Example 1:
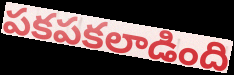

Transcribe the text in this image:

పకపకలాడింది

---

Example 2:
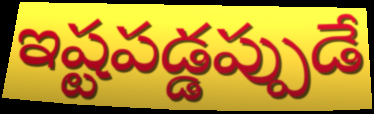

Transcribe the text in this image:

ఇష్టపడ్డప్పుడే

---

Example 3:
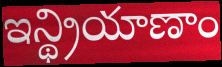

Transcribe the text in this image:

ఇన్థ్రియాణాం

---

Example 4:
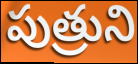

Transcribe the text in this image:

పుత్రుని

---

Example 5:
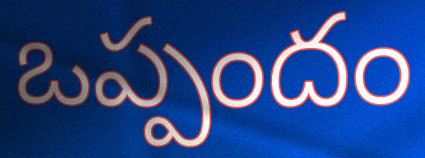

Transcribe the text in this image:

ఒప్పందం